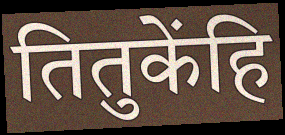
तितुकेंहि